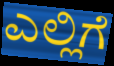
ಎಲ್ಲಿಗೆ